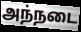
அந்நடை